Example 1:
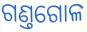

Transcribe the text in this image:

ଗଣ୍ତଗୋଳ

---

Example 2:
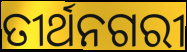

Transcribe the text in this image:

ତୀର୍ଥନଗରୀ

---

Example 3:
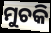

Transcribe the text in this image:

ମୁଚକି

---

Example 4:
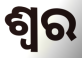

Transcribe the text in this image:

ଶ୍ୱର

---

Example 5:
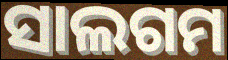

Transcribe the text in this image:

ସାଲଗମ